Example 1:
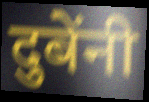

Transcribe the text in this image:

दुबेंनी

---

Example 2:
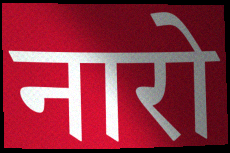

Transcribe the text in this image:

नारो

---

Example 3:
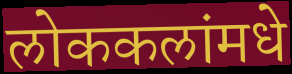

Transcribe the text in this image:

लोककलांमधे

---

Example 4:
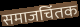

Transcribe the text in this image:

समाजचिंतक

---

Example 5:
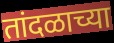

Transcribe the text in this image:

तांदळाच्या